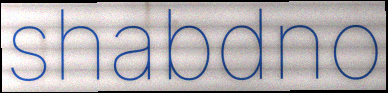
shabdno